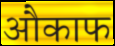
औकाफ